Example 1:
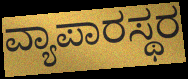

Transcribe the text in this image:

ವ್ಯಾಪಾರಸ್ಥರ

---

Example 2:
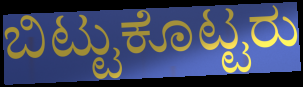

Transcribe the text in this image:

ಬಿಟ್ಟುಕೊಟ್ಟರು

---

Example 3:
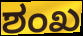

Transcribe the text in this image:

ಶಂಖ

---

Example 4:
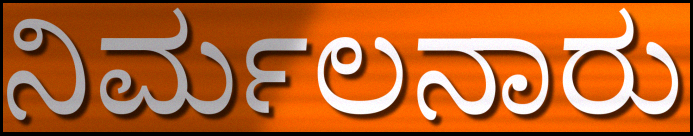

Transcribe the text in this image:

ನಿರ್ಮಲನಾರು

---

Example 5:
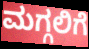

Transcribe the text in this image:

ಮಗ್ಗಲಿಗೆ